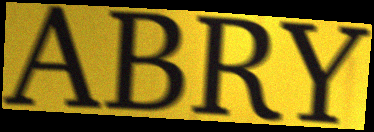
ABRY